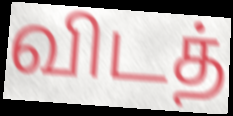
விடத்